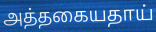
அத்தகையதாய்